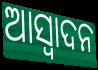
ଆସ୍ଵାଦନ